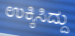
ಉಕ್ಕಿಸಿದ್ದು